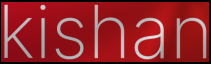
kishan